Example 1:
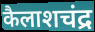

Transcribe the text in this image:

कैलाशचंद्र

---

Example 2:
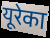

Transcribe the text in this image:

यूरेका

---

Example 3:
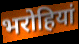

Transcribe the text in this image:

भरोहियां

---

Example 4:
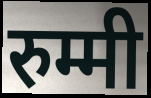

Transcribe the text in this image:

रुम्मी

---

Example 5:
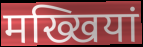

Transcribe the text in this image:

मख्खियां